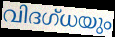
വിദഗ്ധയും